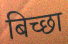
बिच्छा